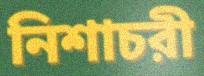
নিশাচরী